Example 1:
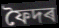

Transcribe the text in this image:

ফৈদৰ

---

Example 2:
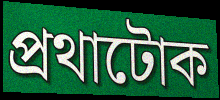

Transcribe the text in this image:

প্ৰথাটোক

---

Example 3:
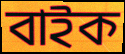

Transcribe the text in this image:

বাইক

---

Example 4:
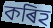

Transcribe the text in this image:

কৰিহ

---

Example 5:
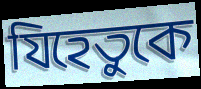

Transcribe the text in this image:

যিহেতুকে